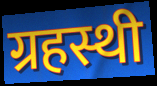
ग्रहस्थी